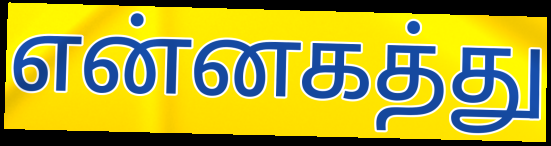
என்னகத்து